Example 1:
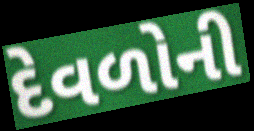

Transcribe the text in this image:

દેવળોની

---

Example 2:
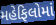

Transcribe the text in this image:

મહેફિલોમાં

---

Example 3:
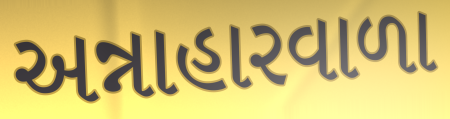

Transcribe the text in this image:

અન્નાહારવાળા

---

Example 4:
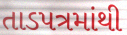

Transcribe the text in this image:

તાડપત્રમાંથી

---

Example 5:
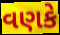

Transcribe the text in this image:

વણકે